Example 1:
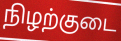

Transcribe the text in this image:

நிழற்குடை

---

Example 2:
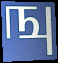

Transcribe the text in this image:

ஙு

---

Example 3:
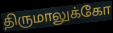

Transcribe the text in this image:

திருமாலுக்கோ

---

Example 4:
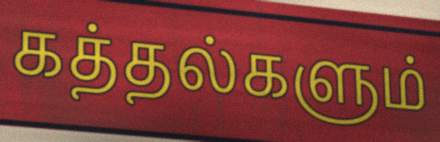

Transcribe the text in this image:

கத்தல்களும்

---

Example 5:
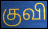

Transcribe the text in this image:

குவி